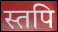
स्‍तपि